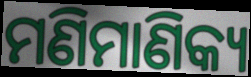
ମଣିମାଣିକ୍ୟ